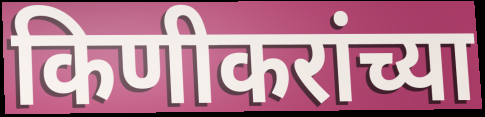
किणीकरांच्या